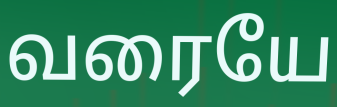
வரையே